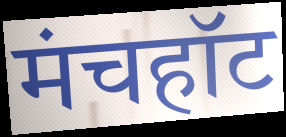
मंचहॉट